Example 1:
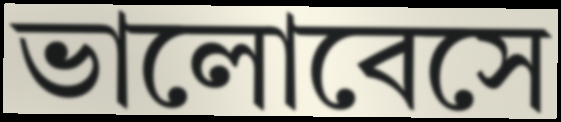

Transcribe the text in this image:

ভালোবেসে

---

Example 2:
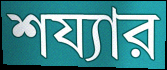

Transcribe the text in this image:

শয্যার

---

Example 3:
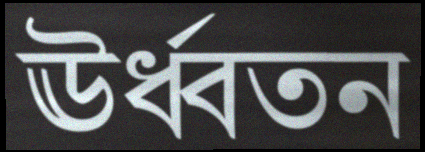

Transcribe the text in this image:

ঊর্ধ্বতন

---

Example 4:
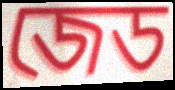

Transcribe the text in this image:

জেড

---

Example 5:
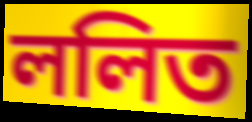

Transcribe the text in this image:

ললিত